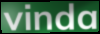
vinda